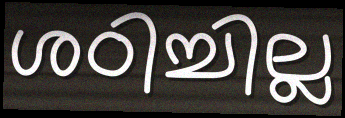
ശഠിച്ചില്ല